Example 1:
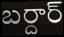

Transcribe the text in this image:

బర్దార్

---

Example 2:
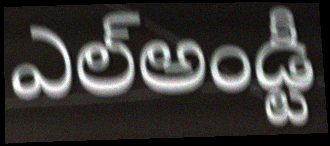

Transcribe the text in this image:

ఎల్అండ్టీ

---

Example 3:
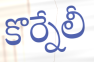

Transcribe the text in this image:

కొర్నేలీ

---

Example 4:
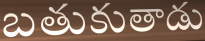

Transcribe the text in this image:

బతుకుతాడు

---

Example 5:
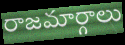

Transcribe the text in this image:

రాజమార్గాలు